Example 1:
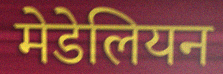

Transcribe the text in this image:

मेडेलियन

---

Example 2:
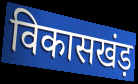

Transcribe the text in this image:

विकासखंड़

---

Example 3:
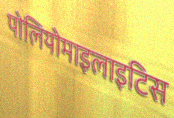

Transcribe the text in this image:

पोलियोमाइलाइटिस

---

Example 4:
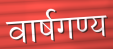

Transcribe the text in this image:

वार्षगण्य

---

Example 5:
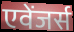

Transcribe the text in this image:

एवेंजर्स